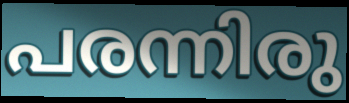
പരന്നിരു